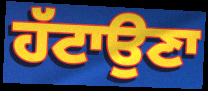
ਹੱਟਾਉਣਾ